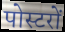
पोस्टरों